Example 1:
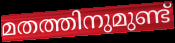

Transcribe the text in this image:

മതത്തിനുമുണ്ട്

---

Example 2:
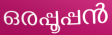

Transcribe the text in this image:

ഒരപ്പൂപ്പൻ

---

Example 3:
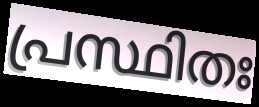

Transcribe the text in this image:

പ്രസ്ഥിതഃ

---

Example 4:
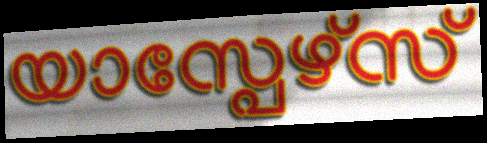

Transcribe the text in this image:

യാസ്പേഴ്സ്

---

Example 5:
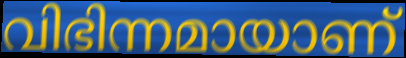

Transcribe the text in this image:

വിഭിന്നമായാണ്